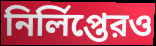
নির্লিপ্তেরও